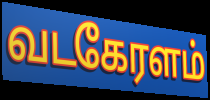
வடகேரளம்